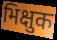
भिक्षुक